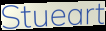
Stueart